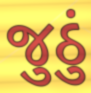
જુઠું